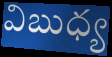
విబుధ్య